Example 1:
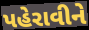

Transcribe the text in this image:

પહેરાવીને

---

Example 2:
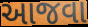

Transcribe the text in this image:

આજવા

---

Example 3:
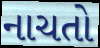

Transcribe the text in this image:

નાચતો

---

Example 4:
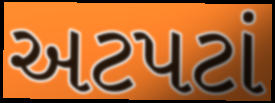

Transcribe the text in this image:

અટપટાં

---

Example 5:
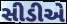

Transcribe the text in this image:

સીડીએ